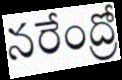
నరేంద్రో